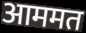
आममत